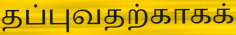
தப்புவதற்காகக்